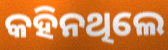
କହିନଥିଲେ